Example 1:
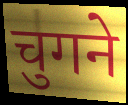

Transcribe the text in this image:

चुगने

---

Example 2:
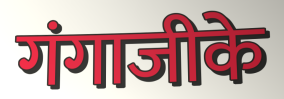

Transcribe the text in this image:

गंगाजीके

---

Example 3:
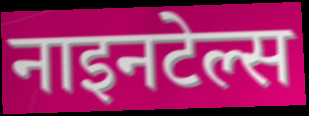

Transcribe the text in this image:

नाइनटेल्स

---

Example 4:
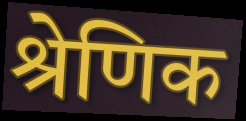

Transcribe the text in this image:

श्रेणिक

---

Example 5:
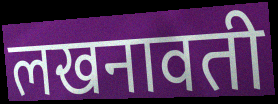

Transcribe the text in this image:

लखनावती